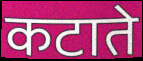
कटाते